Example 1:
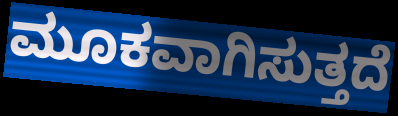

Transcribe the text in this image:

ಮೂಕವಾಗಿಸುತ್ತದೆ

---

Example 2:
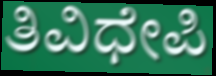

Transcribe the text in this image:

ತಿವಿಧೇಪಿ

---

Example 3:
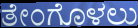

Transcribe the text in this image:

ತೇಂಗೊಳಲು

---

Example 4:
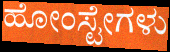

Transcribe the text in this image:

ಹೋಂಸ್ಟೇಗಳು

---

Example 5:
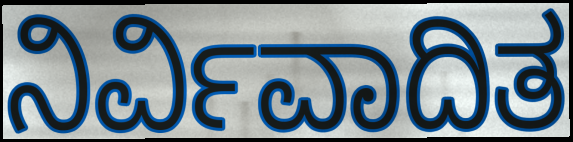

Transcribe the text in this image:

ನಿರ್ವಿವಾದಿತ